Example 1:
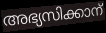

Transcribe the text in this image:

അഭ്യസിക്കാന്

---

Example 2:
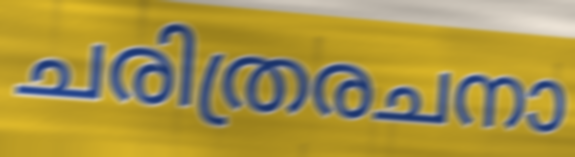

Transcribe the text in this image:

ചരിത്രരചനാ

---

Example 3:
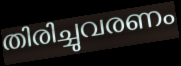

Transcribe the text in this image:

തിരിച്ചുവരണം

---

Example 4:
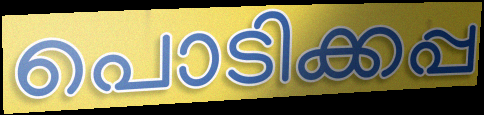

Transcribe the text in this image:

പൊടിക്കപ്പ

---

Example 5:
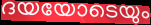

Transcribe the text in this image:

ദയയോടെയും